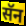
सॅन